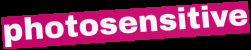
photosensitive